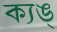
ক্যঙ্